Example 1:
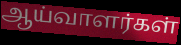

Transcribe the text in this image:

ஆய்வாளர்கள்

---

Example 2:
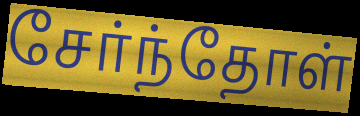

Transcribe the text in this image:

சேர்ந்தோள்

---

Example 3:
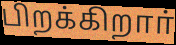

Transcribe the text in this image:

பிறக்கிறார்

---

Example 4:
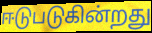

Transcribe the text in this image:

ஈடுபடுகின்றது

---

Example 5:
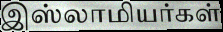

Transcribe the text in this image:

இஸ்லாமியர்கள்